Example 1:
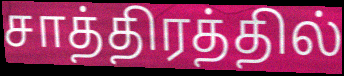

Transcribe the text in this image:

சாத்திரத்தில்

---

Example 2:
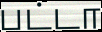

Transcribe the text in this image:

பட்டா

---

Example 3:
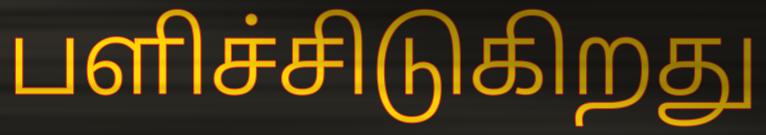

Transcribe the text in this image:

பளிச்சிடுகிறது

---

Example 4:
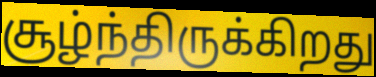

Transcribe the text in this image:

சூழ்ந்திருக்கிறது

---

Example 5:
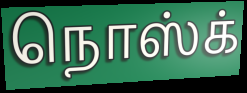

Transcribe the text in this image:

நொஸ்க்